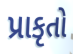
પ્રાકૃતો